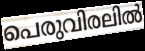
പെരുവിരലിൽ